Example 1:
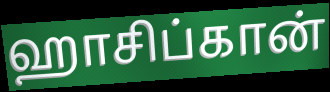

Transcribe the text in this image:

ஹாசிப்கான்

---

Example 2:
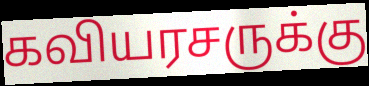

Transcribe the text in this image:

கவியரசருக்கு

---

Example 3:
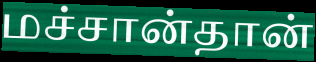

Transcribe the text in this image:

மச்சான்தான்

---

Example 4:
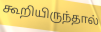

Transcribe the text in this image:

கூறியிருந்தால்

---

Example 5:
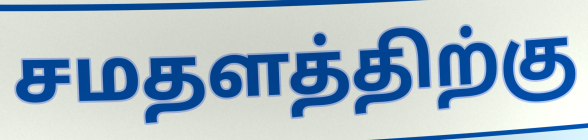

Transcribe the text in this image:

சமதளத்திற்கு